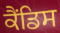
ਕੈਂਡਿਸ